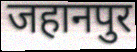
जहानपुर